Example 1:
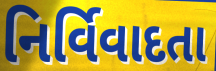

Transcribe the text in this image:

નિર્વિવાદતા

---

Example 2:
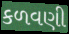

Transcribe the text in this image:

કળવણી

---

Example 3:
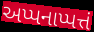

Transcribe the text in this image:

અપ્પનાપ્પત્તં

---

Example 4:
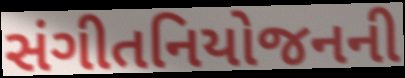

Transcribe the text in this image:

સંગીતનિયોજનની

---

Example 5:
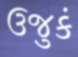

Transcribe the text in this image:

ઉજુકં